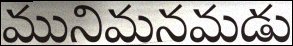
మునిమనమడు